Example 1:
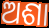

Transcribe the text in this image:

ଅଶା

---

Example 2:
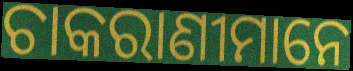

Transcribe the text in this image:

ଚାକରାଣୀମାନେ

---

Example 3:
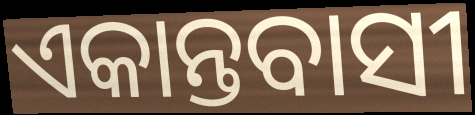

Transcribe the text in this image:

ଏକାନ୍ତବାସୀ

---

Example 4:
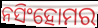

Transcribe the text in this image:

ନସିଂହୋମର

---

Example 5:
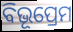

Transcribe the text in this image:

ବିଭୂପ୍ରେମ